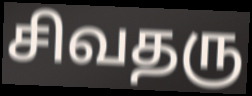
சிவதரு